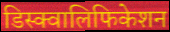
डिस्क्वालिफिकेशन